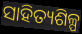
ସାହିତ୍ୟଶିଳ୍ପ